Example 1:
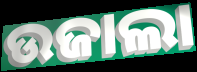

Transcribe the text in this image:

ଉଜାଲା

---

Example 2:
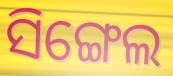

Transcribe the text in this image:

ସିଙ୍ଗେଲ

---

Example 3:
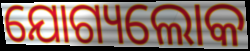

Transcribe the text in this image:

ଯୋଗ୍ୟଲୋକ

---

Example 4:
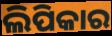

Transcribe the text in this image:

ଲିପିକାର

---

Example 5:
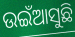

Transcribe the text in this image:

ଉଇଁଆସୁଛି